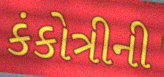
કંકોત્રીની